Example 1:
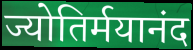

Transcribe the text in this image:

ज्योतिर्मयानंद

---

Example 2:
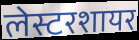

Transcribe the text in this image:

लेस्टरशायर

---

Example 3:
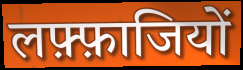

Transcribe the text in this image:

लफ़्फ़ाजियों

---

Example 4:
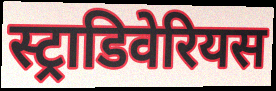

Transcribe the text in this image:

स्ट्राडिवेरियस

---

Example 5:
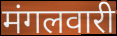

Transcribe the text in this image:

मंगलवारी